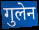
गुलेन